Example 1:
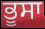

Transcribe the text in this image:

ਭੂਸਾ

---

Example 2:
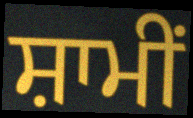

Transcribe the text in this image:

ਸ਼ਾਮੀਂ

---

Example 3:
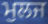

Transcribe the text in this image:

ਮੁਲਜ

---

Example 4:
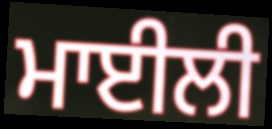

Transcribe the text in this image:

ਮਾਈਲੀ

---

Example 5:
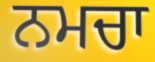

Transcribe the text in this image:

ਨਮਚਾ